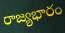
రాజ్యభారం